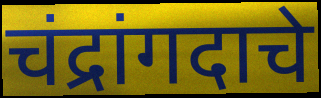
चंद्रांगदाचे